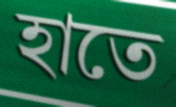
হাতে